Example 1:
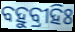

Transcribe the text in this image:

ବହୁବ୍ରୀହିଃ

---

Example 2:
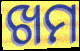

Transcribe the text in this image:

ଖମ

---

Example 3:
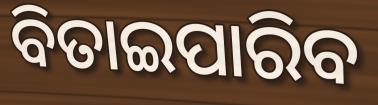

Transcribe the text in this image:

ବିତାଇପାରିବ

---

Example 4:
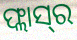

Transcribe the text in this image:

ଫ୍ଲାସ୍‌ର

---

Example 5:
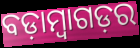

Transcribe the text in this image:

ବଡ଼ାମ୍ବାଗଡ଼ର